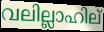
വലില്ലാഹില്